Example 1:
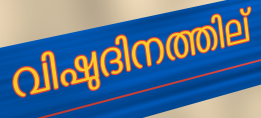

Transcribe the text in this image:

വിഷുദിനത്തില്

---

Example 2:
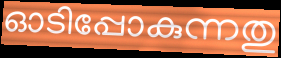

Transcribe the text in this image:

ഓടിപ്പോകുന്നതു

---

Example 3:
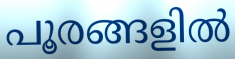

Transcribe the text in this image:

പൂരങ്ങളിൽ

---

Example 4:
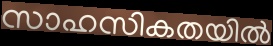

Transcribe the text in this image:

സാഹസികതയിൽ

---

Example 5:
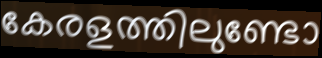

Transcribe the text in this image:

കേരളത്തിലുണ്ടോ